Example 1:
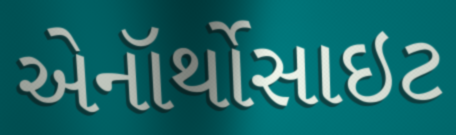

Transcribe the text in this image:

એનૉર્થોસાઇટ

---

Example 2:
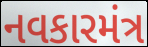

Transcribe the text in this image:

નવકારમંત્ર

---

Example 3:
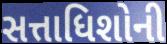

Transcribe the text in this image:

સત્તાધિશોની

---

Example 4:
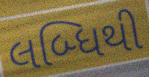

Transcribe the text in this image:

લબ્ધિથી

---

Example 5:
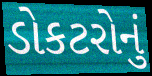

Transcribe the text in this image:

ડોકટરોનું